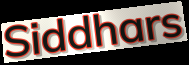
Siddhars